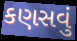
કણસવું